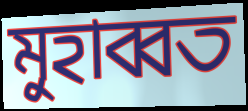
মুহাব্বত